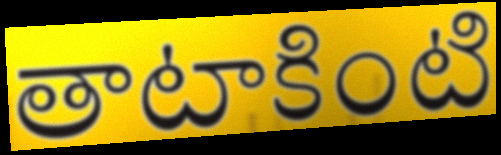
తాటాకింటి